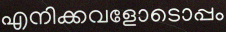
എനിക്കവളോടൊപ്പം